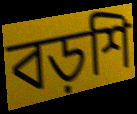
বড়শি